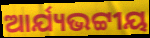
ଆର୍ଯ୍ୟଭଟ୍ଟୀୟ